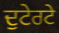
ਦੁਟੇਰਟੇ